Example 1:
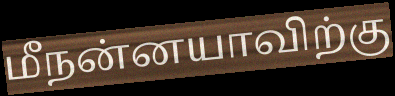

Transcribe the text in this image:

மீநன்னயாவிற்கு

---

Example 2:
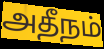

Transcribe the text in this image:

அதீநம்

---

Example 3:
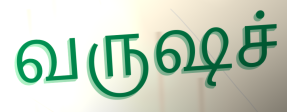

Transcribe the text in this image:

வருஷச்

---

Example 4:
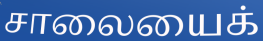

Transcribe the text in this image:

சாலையைக்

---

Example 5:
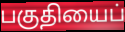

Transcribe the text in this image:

பகுதியைப்